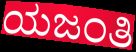
ಯಜಂತಿ